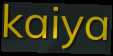
kaiya